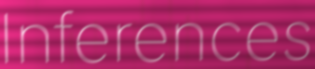
Inferences